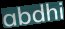
abdhi